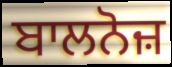
ਬਾਲਨੋਜ਼